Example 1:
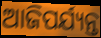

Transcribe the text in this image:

ଆଜିପର୍ଯ୍ୟନ୍ତ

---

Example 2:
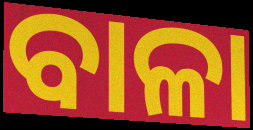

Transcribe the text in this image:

ବାଳା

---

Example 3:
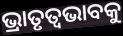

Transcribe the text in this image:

ଭ୍ରାତୃତ୍ୱଭାବକୁ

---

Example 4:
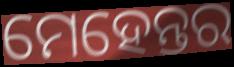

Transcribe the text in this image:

ମେହେନ୍ତର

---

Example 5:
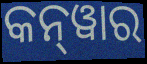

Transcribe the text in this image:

କନ୍‍ୱାର